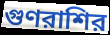
গুণরাশির